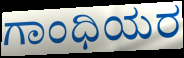
ಗಾಂಧಿಯರ